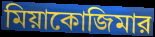
মিয়াকোজিমার